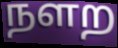
நளற